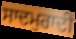
ਸਾਦਮੁਰਾਦੀ